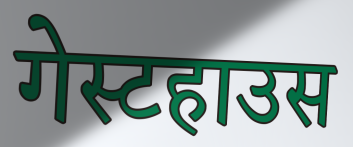
गेस्टहाउस